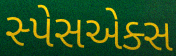
સ્પેસએક્સ